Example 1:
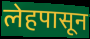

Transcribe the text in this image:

लेहपासून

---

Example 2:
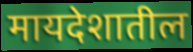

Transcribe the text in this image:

मायदेशातील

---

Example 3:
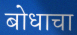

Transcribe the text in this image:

बोधाचा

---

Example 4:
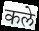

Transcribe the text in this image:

कले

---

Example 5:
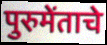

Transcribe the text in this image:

पुरुमेंताचे